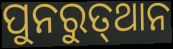
ପୁନରୁତ୍‌ଥାନ